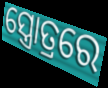
ସ୍ତ୍ରୋତ୍ରରେ